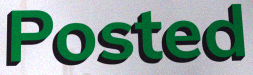
Posted